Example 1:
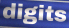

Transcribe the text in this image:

digits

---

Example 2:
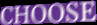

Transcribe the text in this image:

CHOOSE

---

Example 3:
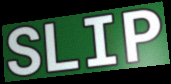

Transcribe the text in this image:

SLIP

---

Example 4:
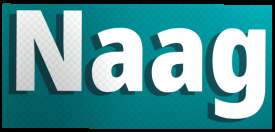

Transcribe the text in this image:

Naag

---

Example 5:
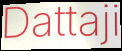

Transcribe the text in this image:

Dattaji